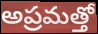
అప్రమత్తో